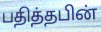
பதித்தபின்